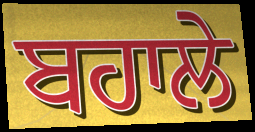
ਬਹਾਲੇ